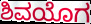
ಶಿವಯೊಗ